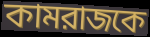
কামরাজকে